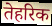
तेहरिक